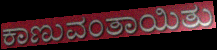
ಕಾಣುವಂತಾಯಿತು